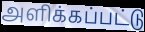
அளிக்கப்பட்டு